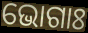
ଭୋଗାଃ